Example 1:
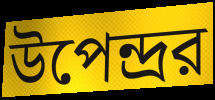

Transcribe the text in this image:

উপেন্দ্রর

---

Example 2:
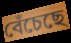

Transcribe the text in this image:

বেঁচেছে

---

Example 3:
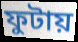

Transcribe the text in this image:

ফুটায়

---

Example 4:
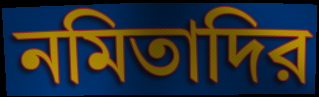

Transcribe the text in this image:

নমিতাদির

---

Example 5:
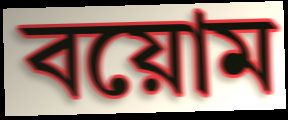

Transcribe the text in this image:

বয়োম